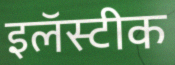
इलॅस्टीक